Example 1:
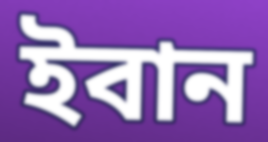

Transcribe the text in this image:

ইবান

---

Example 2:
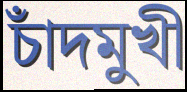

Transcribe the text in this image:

চাঁদমুখী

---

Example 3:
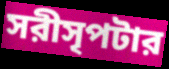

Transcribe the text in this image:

সরীসৃপটার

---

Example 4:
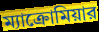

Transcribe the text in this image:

ম্যাক্রোমিয়ার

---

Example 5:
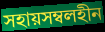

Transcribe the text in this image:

সহায়সম্বলহীন